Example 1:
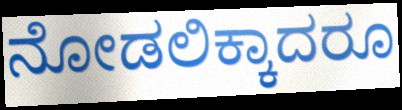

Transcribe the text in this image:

ನೋಡಲಿಕ್ಕಾದರೂ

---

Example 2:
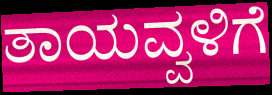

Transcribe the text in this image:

ತಾಯವ್ವಳಿಗೆ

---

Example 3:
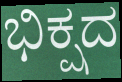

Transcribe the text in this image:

ಭಿಕ್ಷದ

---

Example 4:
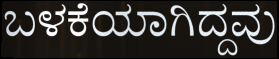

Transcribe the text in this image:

ಬಳಕೆಯಾಗಿದ್ದವು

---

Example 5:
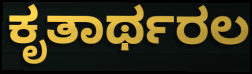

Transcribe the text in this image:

ಕೃತಾರ್ಥರಲ